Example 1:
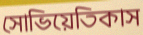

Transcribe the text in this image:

সোভিয়েতিকাস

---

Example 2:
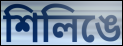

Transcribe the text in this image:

শিলিঙে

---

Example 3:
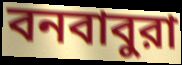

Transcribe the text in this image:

বনবাবুরা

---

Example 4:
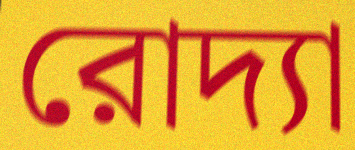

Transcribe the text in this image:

রোদ্যা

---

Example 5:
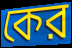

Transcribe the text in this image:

কের